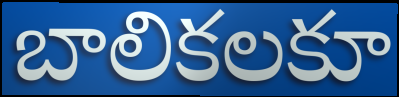
బాలికలకూ